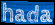
hada